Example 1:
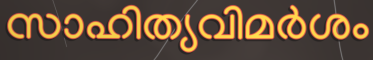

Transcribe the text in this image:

സാഹിത്യവിമർശം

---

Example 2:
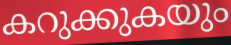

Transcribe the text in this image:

കറുക്കുകയും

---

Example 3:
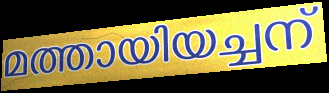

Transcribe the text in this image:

മത്തായിയച്ചന്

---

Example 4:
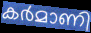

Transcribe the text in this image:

കർമാണി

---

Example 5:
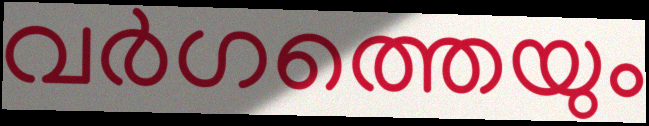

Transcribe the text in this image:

വർഗത്തെയും